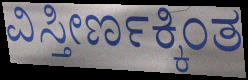
ವಿಸ್ತೀರ್ಣಕ್ಕಿಂತ